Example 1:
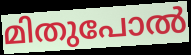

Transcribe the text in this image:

മിതുപോൽ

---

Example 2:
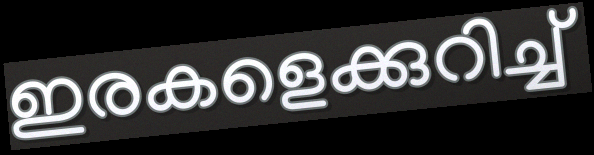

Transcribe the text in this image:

ഇരകളെക്കുറിച്ച്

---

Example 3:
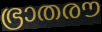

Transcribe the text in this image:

ഭ്രാതരൗ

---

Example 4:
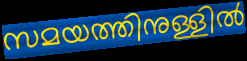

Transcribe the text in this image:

സമയത്തിനുള്ളിൽ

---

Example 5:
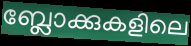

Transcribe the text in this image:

ബ്ലോക്കുകളിലെ